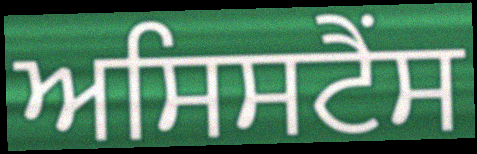
ਅਸਿਸਟੈਂਸ